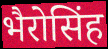
भैरोसिंह